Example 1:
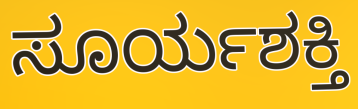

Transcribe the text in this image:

ಸೂರ್ಯಶಕ್ತಿ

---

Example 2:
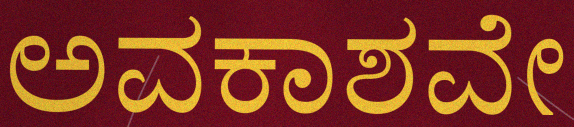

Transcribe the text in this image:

ಅವಕಾಶವೇ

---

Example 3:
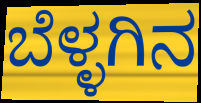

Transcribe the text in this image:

ಬೆಳ್ಳಗಿನ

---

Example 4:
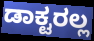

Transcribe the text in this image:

ಡಾಕ್ಟರಲ್ಲ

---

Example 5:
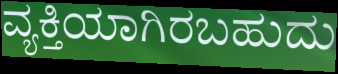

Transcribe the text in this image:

ವ್ಯಕ್ತಿಯಾಗಿರಬಹುದು